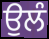
ਉਲੰ